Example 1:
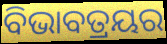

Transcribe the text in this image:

ବିଭାବତ୍ରୟର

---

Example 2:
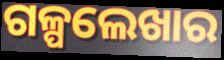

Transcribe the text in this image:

ଗଳ୍ପଲେଖାର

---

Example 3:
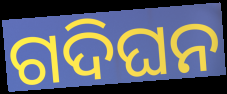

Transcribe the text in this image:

ଗଦିଘନ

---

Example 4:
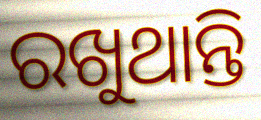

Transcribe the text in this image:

ରଖୁଥାନ୍ତି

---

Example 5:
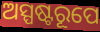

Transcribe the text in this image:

ଅସ୍ପଷ୍ଟରୂପେ